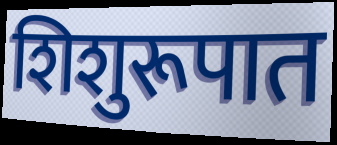
शिशुरूपात